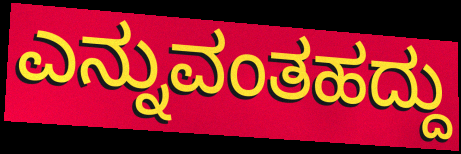
ಎನ್ನುವಂತಹದ್ದು